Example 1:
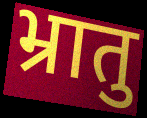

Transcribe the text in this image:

भ्रातु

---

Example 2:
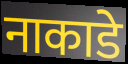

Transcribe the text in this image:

नाकाडे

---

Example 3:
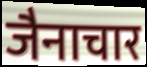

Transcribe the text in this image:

जैनाचार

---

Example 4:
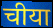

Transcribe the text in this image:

चीया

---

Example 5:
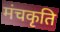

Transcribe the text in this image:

मंचकृति